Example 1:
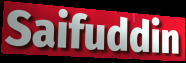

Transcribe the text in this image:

Saifuddin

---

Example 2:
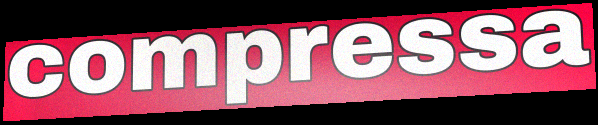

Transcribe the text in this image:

compressa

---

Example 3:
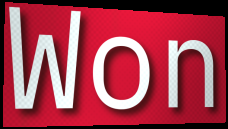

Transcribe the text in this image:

Won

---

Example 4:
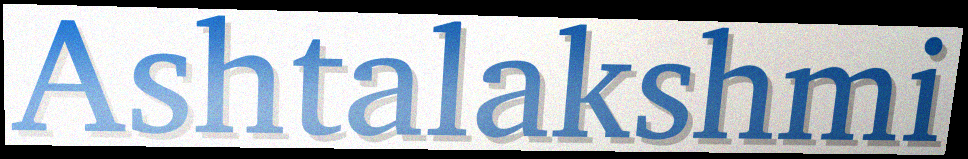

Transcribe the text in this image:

Ashtalakshmi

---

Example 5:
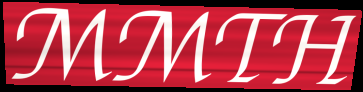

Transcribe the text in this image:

MMTH